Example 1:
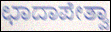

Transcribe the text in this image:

ಛಾದಾಪೇತ್ವಾ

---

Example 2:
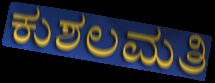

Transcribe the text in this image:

ಕುಶಲಮತಿ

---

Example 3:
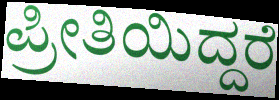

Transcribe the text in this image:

ಪ್ರೀತಿಯಿದ್ದರೆ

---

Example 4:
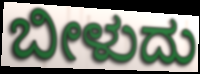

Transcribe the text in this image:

ಬೀಳುದು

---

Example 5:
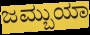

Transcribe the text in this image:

ಜಮ್ಬುಯಾ